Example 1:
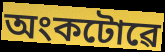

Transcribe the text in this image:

অংকটোৱে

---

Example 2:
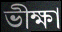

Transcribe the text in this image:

ভীক্ষা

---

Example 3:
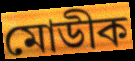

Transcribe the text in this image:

মোডীক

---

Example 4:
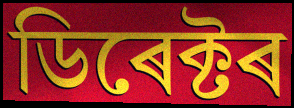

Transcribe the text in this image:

ডিৰেক্টৰ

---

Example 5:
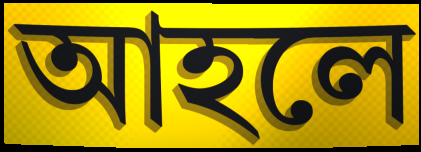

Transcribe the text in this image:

আহলে